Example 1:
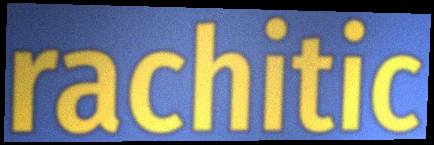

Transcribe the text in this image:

rachitic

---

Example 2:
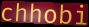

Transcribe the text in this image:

chhobi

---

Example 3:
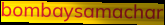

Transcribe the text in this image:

bombaysamachar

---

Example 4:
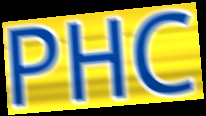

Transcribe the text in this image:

PHC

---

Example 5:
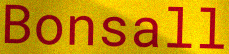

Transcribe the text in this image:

Bonsall